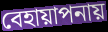
বেহায়াপনায়